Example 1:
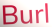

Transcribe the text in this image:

Burl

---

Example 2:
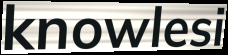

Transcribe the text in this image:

knowlesi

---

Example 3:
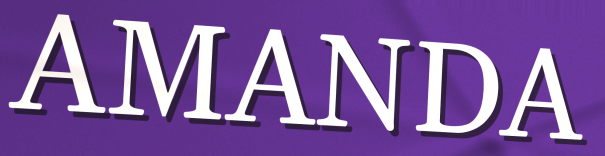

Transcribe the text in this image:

AMANDA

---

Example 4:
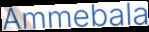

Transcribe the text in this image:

Ammebala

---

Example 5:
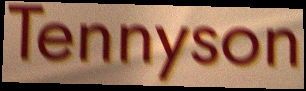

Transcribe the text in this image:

Tennyson